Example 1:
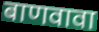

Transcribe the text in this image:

बाणवावा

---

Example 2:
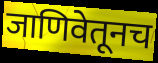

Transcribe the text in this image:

जाणिवेतूनच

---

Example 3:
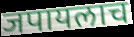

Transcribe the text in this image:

जपायलाच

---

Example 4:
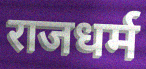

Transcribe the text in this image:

राजधर्म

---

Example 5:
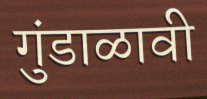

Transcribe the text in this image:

गुंडाळावी